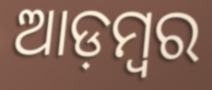
ଆଡ଼ମ୍ୱର